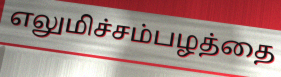
எலுமிச்சம்பழத்தை